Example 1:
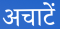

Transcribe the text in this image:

अचाटें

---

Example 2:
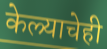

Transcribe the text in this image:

केल्याचेही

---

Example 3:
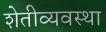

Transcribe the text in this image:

शेतीव्यवस्था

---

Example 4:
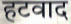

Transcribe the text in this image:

हटवाद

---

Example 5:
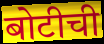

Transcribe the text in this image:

बोटीची